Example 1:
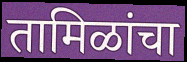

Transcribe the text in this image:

तामिळांचा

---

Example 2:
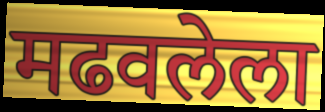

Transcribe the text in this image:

मढवलेला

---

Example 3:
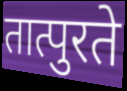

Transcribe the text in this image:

तात्पुरते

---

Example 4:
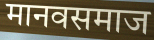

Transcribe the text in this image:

मानवसमाज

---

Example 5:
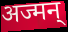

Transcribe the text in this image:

अज्मन्